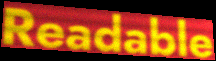
Readable